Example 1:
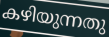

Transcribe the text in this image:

കഴിയുന്നതു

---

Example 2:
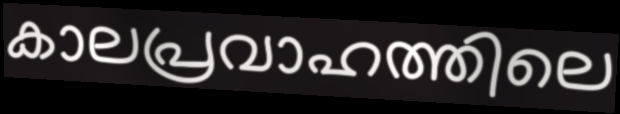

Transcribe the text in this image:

കാലപ്രവാഹത്തിലെ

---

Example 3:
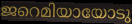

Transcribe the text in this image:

ജറെമിയായോടു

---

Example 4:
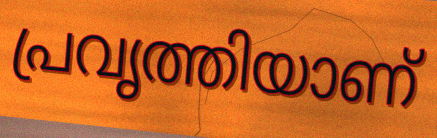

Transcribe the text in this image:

പ്രവൃത്തിയാണ്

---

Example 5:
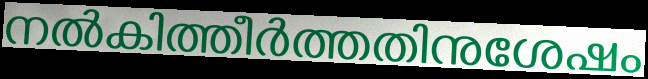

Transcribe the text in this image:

നൽകിത്തീർത്തതിനുശേഷം